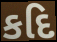
કદિ